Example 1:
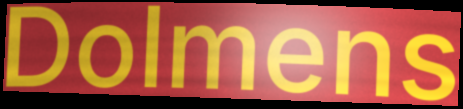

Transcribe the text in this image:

Dolmens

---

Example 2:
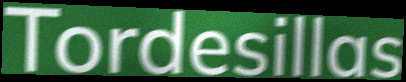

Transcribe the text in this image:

Tordesillas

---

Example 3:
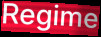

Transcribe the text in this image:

Regime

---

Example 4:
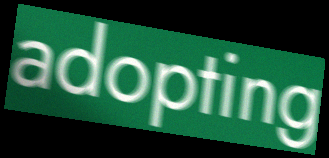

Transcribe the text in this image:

adopting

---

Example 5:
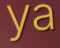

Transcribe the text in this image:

ya